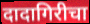
दादागिरीचा